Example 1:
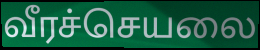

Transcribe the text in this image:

வீரச்செயலை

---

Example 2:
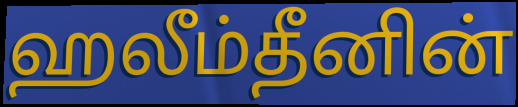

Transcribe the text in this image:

ஹலீம்தீனின்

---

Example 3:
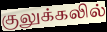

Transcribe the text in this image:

குலுக்கலில்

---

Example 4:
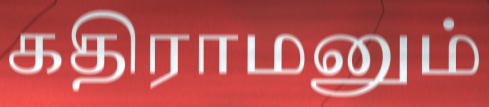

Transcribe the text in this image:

கதிராமனும்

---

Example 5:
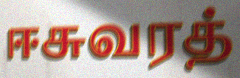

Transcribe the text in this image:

ஈசுவரத்